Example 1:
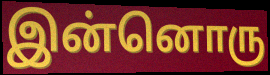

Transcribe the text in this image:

இன்னொரு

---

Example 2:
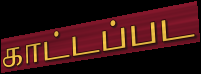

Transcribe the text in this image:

காட்டப்பட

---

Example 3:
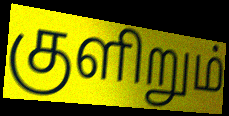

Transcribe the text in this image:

குளிறும்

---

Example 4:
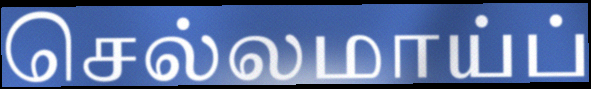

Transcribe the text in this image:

செல்லமாய்ப்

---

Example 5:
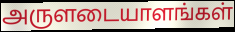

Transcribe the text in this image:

அருளடையாளங்கள்